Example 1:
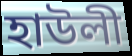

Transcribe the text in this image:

হাউলী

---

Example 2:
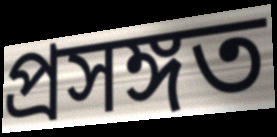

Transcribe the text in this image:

প্ৰসঙ্গত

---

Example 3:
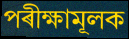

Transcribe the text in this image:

পৰীক্ষামূলক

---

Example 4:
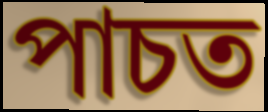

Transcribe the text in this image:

পাচত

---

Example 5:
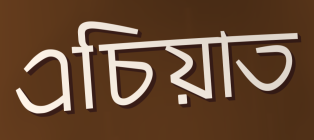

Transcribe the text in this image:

এচিয়াত